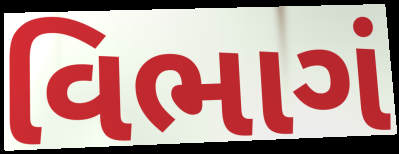
વિભાગં